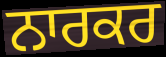
ਨਾਰਕਰ